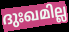
ദുഃഖമില്ല